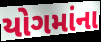
યોગમાંના